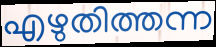
എഴുതിത്തന്ന